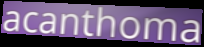
acanthoma